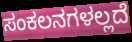
ಸಂಕಲನಗಳಲ್ಲದೆ